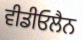
ਵੀਡੀਓਲੈਨ